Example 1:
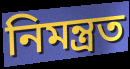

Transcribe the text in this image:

নিমন্ত্রত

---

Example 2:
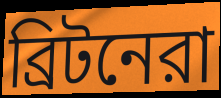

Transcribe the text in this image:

ব্রিটনেরা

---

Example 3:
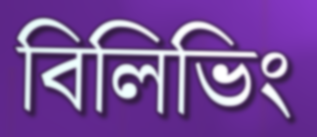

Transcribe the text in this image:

বিলিভিং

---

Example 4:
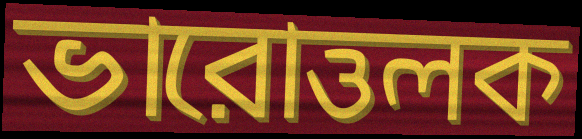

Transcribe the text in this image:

ভারোত্তলক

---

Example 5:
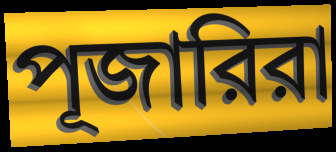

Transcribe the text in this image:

পূজারিরা